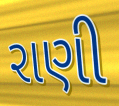
રાણી